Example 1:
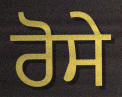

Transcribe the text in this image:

ਰੋਸੇ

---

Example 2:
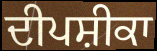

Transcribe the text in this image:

ਦੀਪਸ਼ੀਕਾ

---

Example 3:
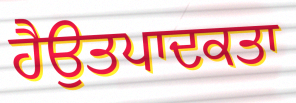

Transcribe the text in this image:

ਹੈਉਤਪਾਦਕਤਾ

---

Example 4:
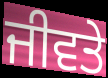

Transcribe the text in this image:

ਜੀਵਤੇ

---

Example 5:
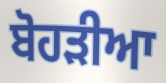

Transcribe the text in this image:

ਬੋਹੜੀਆ